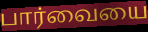
பார்வையை